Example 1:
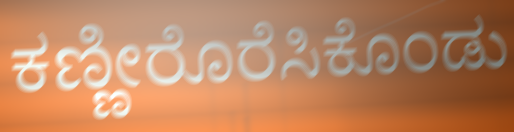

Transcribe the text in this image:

ಕಣ್ಣೀರೊರೆಸಿಕೊಂಡು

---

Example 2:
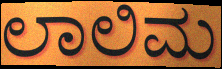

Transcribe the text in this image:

ಲಾಲಿಮ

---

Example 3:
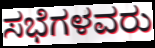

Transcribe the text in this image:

ಸಭೆಗಳವರು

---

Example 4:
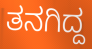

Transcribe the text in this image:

ತನಗಿದ್ದ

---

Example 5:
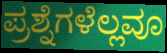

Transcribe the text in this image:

ಪ್ರಶ್ನೆಗಳೆಲ್ಲವೂ